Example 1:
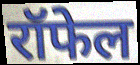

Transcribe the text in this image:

रॉफेल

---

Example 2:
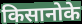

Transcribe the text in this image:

किसानोके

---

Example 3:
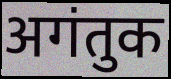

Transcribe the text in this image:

अगंतुक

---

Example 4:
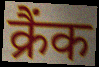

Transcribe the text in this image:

क्रैंक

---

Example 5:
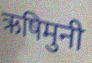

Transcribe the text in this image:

ऋषिमुनी